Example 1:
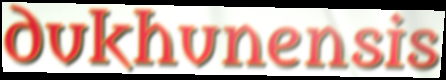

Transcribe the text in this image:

dukhunensis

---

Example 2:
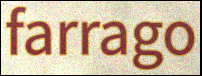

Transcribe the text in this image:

farrago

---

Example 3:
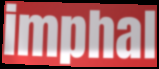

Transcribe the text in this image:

imphal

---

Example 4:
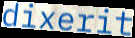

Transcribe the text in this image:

dixerit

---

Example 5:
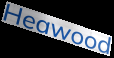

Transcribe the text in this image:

Heawood